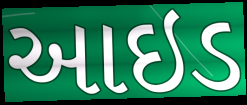
આઇડ